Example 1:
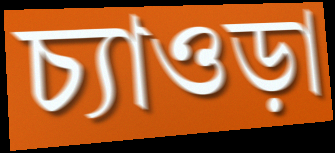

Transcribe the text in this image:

চ্যাওড়া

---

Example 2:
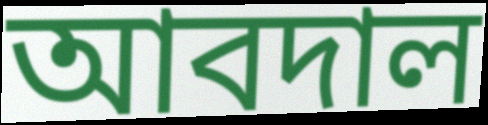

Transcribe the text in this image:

আবদাল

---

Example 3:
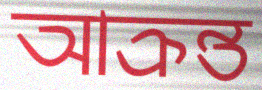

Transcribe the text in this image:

আক্রন্ত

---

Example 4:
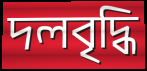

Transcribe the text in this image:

দলবৃদ্ধি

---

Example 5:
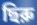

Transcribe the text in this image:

ছিরু